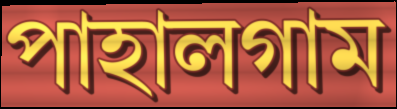
পাহালগাম